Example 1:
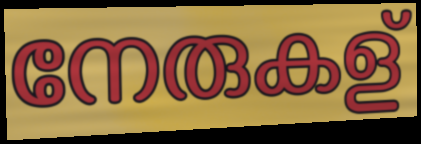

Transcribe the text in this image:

നേരുകള്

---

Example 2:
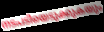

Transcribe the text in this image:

നടപടിയെടുക്കുകയും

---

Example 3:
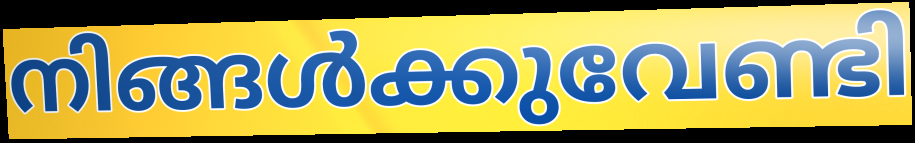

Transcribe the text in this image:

നിങ്ങൾക്കുവേണ്ടി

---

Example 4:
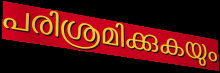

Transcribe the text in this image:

പരിശ്രമിക്കുകയും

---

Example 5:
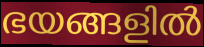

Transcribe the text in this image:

ഭയങ്ങളിൽ